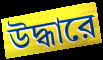
উদ্ধারে